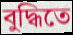
বুদ্ধিতে